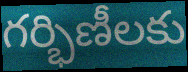
గర్భిణీలకు